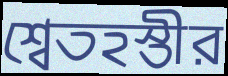
শ্বেতহস্তীর